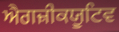
ਐਗਜ਼ੀਕਯੂਟਿਵ